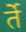
र्ते